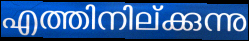
എത്തിനില്ക്കുന്നു